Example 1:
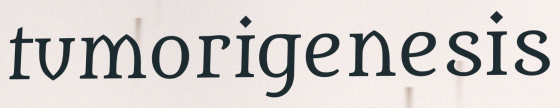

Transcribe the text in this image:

tumorigenesis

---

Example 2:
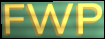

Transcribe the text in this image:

FWP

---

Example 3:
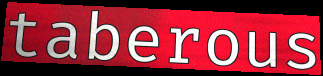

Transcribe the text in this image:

taberous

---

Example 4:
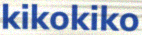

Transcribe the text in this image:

kikokiko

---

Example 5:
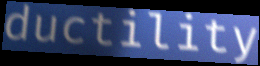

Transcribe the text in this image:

ductility